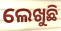
ଲେଖୁଛି